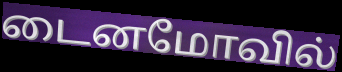
டைனமோவில்